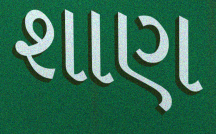
શાણ